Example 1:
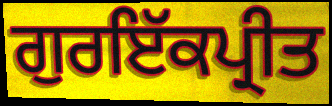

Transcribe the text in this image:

ਗੁਰਇੱਕਪ੍ਰੀਤ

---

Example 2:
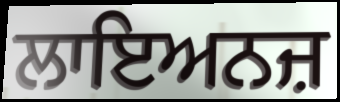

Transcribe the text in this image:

ਲਾਇਅਨਜ਼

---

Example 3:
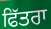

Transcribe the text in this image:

ਫਿੱਤਰਾ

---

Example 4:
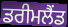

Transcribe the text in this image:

ਡਰੀਮਲੈਂਡ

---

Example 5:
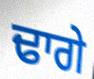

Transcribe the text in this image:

ਢਾਗੇ